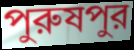
পুরুষপুর